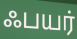
ஃபயர்